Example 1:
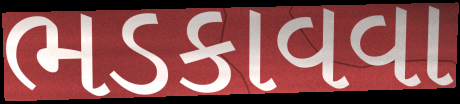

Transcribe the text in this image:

ભડકાવવા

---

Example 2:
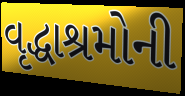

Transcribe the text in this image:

વૃદ્ધાશ્રમોની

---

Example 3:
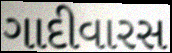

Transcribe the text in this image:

ગાદીવારસ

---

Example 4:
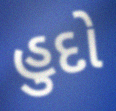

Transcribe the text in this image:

હુદો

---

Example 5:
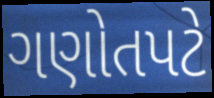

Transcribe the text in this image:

ગણોતપટે